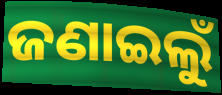
ଜଣାଇଲୁଁ